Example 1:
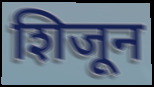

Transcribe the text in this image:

शिजून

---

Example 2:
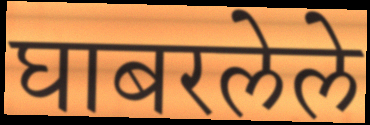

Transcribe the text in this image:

घाबरलेले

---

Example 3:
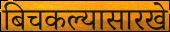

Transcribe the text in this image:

बिचकल्यासारखे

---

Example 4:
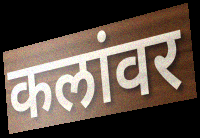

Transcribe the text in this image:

कलांवर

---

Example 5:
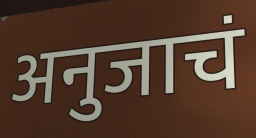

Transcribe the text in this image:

अनुजाचं